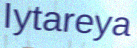
Iytareya